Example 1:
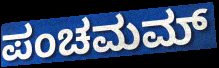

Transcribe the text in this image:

ಪಂಚಮಮ್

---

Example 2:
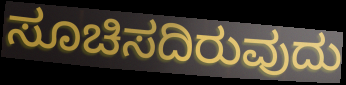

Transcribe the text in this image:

ಸೂಚಿಸದಿರುವುದು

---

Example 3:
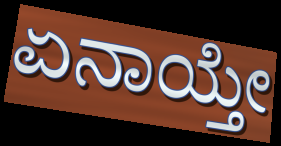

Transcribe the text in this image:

ಏನಾಯ್ತೇ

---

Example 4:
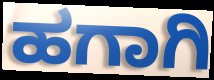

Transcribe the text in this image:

ಹಗಾಗಿ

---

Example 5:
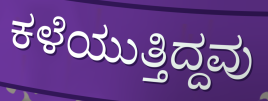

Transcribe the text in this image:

ಕಳೆಯುತ್ತಿದ್ದವು